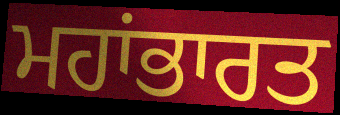
ਮਹਾਂਭਾਰਤ